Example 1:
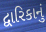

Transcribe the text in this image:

દ્વારિકાનું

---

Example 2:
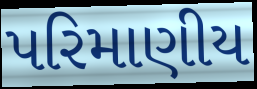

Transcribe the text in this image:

પરિમાણીય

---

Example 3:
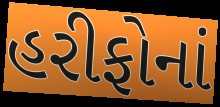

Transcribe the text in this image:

હરીફોનાં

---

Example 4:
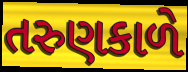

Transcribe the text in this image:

તરુણકાળે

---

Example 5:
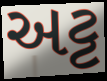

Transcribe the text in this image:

અટ્ટ